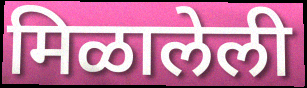
मिळालेली